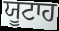
ਯੂਟਾਹ